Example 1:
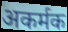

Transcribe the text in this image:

अकर्मक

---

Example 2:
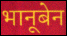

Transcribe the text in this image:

भानूबेन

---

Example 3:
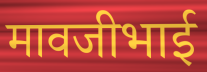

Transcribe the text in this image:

मावजीभाई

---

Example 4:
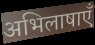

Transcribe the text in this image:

अभिलाषाएँ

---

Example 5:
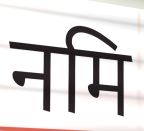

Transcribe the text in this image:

नमि